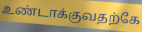
உண்டாக்குவதற்கே